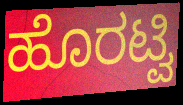
ಹೊರಟ್ವಿ